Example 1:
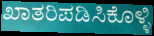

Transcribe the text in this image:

ಖಾತರಿಪಡಿಸಿಕೊಳ್ಳಿ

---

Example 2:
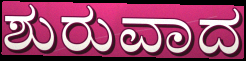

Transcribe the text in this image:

ಶುರುವಾದ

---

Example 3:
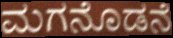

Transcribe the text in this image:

ಮಗನೊಡನೆ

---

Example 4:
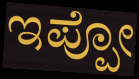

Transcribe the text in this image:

ಇಪ್ಪೋ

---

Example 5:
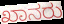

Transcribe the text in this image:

ಖಾನರು